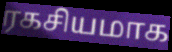
ரகசியமாக